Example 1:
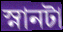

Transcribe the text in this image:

স্নানটা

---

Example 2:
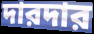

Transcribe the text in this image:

দারদার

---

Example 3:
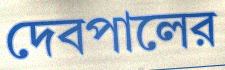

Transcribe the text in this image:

দেবপালের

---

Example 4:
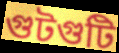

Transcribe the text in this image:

গুটগুটি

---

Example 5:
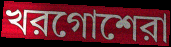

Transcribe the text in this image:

খরগোশেরা